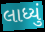
લાધ્યું